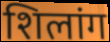
शिलांग